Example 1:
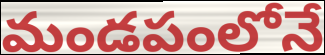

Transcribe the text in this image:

మండపంలోనే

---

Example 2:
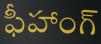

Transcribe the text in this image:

ఫీహాంగ్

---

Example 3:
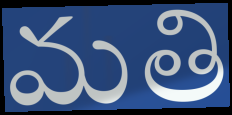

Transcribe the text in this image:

మతి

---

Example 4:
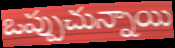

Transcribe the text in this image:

ఒప్పుచున్నాయి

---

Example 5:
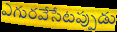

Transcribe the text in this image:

ఎగురవేసేటప్పుడు